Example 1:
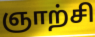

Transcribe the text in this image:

ஞாற்சி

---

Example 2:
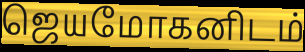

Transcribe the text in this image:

ஜெயமோகனிடம்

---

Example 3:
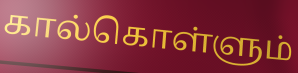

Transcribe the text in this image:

கால்கொள்ளும்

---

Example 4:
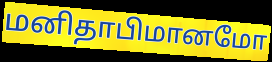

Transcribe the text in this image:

மனிதாபிமானமோ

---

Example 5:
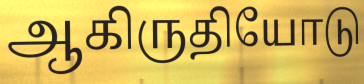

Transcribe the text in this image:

ஆகிருதியோடு